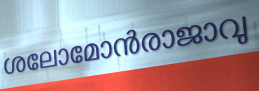
ശലോമോൻരാജാവു